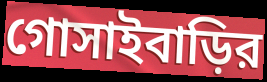
গোসাইবাড়ির